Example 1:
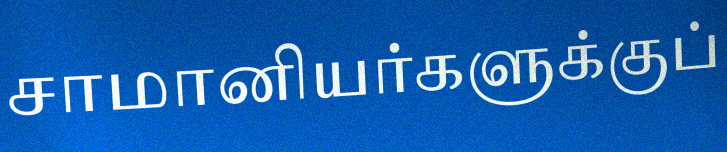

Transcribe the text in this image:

சாமானியர்களுக்குப்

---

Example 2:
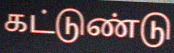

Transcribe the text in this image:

கட்டுண்டு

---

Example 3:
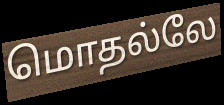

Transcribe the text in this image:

மொதல்லே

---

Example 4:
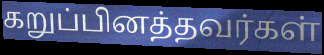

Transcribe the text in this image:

கறுப்பினத்தவர்கள்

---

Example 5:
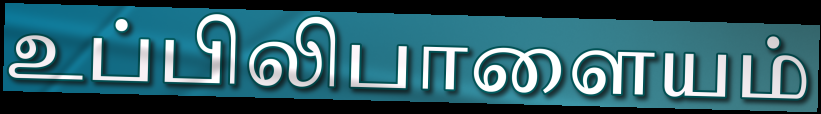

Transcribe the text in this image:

உப்பிலிபாளையம்